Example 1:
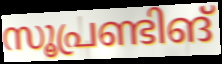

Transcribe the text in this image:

സൂപ്രണ്ടിങ്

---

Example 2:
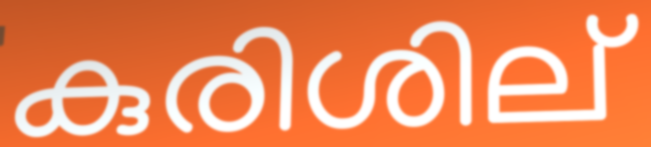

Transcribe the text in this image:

കുരിശില്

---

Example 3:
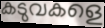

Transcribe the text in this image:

കടുവകളെ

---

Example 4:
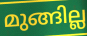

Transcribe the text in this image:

മുങ്ങില്ല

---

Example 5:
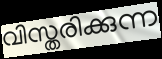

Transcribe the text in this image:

വിസ്തരിക്കുന്ന